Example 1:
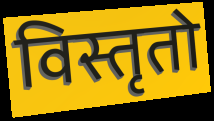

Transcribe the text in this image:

विस्तृतो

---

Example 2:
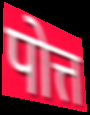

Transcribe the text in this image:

पोत्त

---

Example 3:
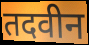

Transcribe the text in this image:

तदवीन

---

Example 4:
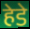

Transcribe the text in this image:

हेडे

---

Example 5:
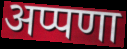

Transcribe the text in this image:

अप्पणा